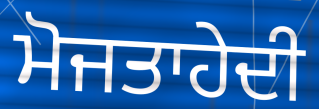
ਮੋਜਤਾਹੇਦੀ